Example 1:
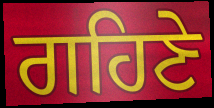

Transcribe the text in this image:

ਗਹਿਣੇ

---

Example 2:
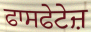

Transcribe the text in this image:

ਫਾਸਫੇਟੇਜ਼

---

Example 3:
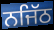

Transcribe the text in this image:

ਨਜਿੱਠ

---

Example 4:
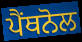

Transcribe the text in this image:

ਪੈਂਥਨੋਲ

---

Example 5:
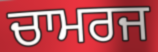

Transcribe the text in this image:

ਚਾਮਰਜ